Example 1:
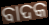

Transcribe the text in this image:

ବାଦକ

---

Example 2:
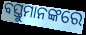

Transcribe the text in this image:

ବସ୍ତୁମାନଙ୍କରେ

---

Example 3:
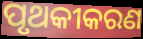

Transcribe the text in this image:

ପୃଥକୀକରଣ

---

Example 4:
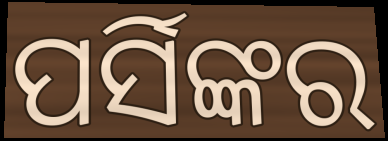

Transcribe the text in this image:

ପର୍ସିଙ୍କର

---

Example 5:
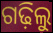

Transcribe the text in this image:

ଗଢ଼ିଲୁ